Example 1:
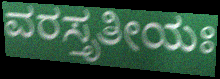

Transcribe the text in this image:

ವರಸ್ತೃತೀಯಃ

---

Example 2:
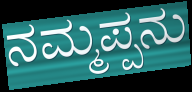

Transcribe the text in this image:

ನಮ್ಮಪ್ಪನು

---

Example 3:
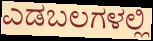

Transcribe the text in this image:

ಎಡಬಲಗಳಲ್ಲಿ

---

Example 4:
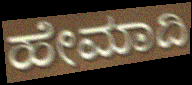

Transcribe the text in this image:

ಹೇಮಾದಿ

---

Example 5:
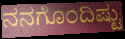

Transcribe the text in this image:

ನನಗೊಂದಿಷ್ಟು